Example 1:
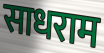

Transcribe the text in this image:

साधराम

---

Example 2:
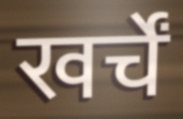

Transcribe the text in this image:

खर्चें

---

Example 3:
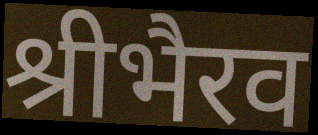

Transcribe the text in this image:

श्रीभैरव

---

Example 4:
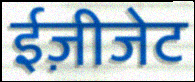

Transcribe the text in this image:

ईज़ीजेट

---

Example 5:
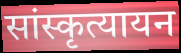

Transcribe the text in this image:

सांस्कृत्यायन